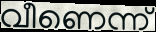
വീണെന്ന്